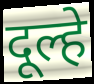
दूल्हे